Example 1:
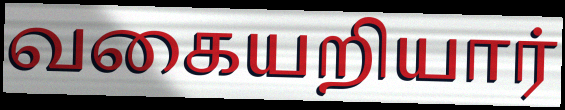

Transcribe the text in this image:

வகையறியார்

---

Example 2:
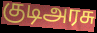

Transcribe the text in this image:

குடிஅரசு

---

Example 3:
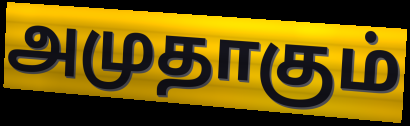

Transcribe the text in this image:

அமுதாகும்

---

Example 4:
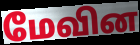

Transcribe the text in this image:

மேவின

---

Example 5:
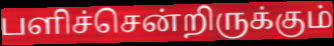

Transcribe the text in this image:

பளிச்சென்றிருக்கும்